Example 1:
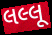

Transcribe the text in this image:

લલ્લૂ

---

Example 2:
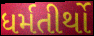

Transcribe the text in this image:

ધર્મતીર્થો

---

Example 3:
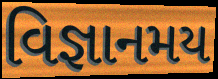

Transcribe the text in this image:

વિજ્ઞાનમય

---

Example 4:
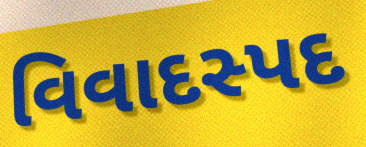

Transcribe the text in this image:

વિવાદસ્પદ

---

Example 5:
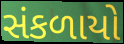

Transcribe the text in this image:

સંકળાયો